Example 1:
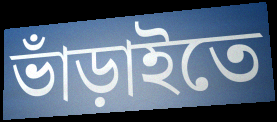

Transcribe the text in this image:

ভাঁড়াইতে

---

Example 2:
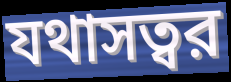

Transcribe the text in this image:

যথাসত্বর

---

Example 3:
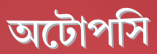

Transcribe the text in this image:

অটোপসি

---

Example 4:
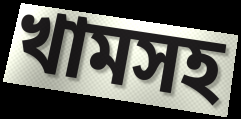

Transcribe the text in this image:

খামসহ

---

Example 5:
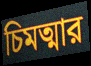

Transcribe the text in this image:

চিমত্মার